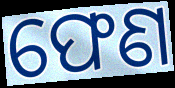
ଫେଣ